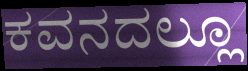
ಕವನದಲ್ಲೂ